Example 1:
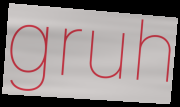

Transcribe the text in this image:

gruh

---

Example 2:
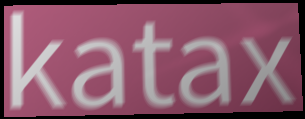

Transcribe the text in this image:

katax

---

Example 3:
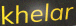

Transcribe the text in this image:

khelar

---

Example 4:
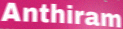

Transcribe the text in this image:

Anthiram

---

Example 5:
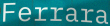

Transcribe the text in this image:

Ferrara